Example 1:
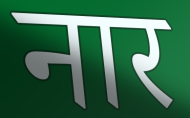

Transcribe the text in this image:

नार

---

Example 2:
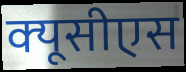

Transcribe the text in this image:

क्यूसीएस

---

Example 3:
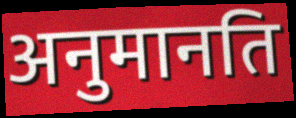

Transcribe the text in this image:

अनुमानति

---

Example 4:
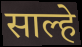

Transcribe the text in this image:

साल्हे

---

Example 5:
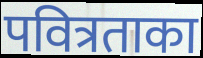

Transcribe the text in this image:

पवित्रताका